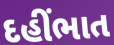
દહીંભાત